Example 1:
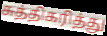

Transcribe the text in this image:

சுத்திகரித்து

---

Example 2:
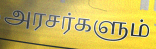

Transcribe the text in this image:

அரசர்களும்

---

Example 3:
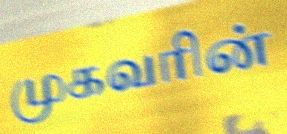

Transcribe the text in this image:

முகவரின்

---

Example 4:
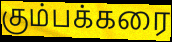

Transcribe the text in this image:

கும்பக்கரை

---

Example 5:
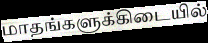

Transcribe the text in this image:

மாதங்களுக்கிடையில்